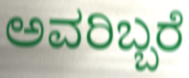
ಅವರಿಬ್ಬರೆ